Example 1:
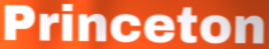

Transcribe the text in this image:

Princeton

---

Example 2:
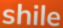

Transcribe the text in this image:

shile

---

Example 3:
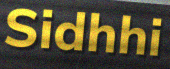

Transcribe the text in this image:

Sidhhi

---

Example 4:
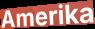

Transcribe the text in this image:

Amerika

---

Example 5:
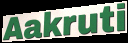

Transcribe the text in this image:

Aakruti